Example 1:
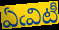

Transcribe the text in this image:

ఏఁవిటీ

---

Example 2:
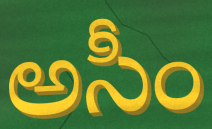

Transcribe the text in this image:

అసీం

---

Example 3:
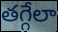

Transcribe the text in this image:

తగ్గేలా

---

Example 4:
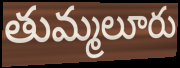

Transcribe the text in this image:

తుమ్మలూరు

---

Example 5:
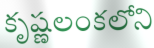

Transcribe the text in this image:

కృష్ణలంకలోని